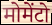
मोमेंटो